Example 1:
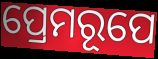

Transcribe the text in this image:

ପ୍ରେମରୂପେ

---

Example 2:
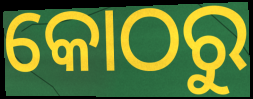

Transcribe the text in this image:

କୋଠରୁ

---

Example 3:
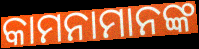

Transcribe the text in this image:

କାମନାମାନଙ୍କ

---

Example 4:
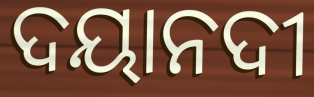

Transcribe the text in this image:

ଦୟାନଦୀ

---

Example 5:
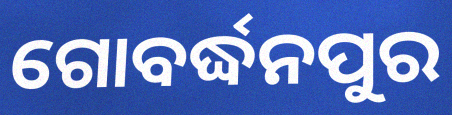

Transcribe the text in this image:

ଗୋବର୍ଦ୍ଧନପୁର